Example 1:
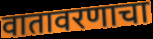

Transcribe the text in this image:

वातावरणाचा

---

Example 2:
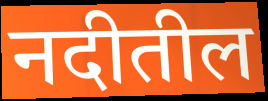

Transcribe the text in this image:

नदीतील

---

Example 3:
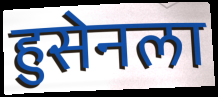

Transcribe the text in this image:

हुसेनला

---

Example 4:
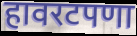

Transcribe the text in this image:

हावरटपणा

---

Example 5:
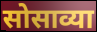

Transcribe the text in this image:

सोसाव्या